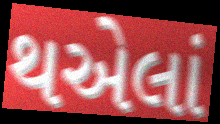
થએલાં